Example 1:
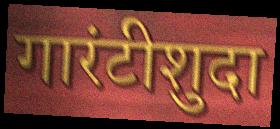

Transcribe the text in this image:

गारंटीशुदा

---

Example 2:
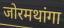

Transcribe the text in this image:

जोरमथांगा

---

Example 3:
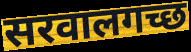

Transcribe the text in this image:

सरवालगच्छ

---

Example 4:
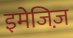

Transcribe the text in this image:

इमेजिज़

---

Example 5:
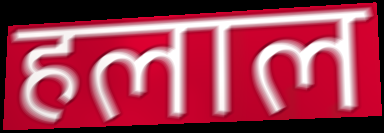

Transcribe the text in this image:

हलाल